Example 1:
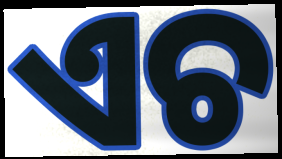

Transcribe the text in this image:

ଏଚ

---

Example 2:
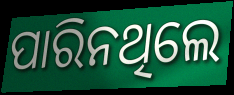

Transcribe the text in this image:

ପାରିନଥିଲେ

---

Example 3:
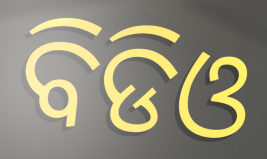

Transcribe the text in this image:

ବିଡିଓ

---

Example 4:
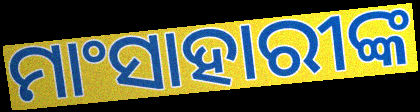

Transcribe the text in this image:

ମାଂସାହାରୀଙ୍କ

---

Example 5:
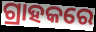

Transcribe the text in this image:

ଗ୍ରାହକରେ